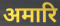
अमारि